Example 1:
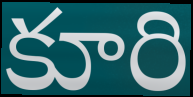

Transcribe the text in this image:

కూరి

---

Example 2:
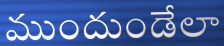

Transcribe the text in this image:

ముందుండేలా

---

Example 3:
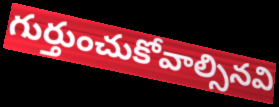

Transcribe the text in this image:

గుర్తుంచుకోవాల్సినవి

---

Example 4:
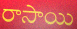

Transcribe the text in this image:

రాసాయి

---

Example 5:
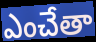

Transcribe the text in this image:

ఎంచేతా